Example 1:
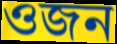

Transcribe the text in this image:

ওজন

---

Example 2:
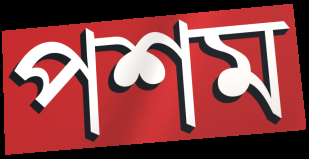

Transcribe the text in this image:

পশম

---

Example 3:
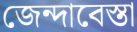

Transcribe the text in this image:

জেন্দাবেস্তা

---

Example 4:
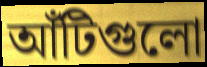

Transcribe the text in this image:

আঁটিগুলো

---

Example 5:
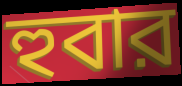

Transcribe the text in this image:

হুবার